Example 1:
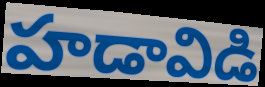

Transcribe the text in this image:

హడావిడి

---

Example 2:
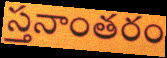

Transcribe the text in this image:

స్తనాంతరం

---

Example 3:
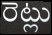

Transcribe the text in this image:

రెట్లు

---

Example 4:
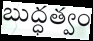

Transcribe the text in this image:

బుద్ధత్వం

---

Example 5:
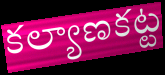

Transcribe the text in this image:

కల్యాణకట్ట